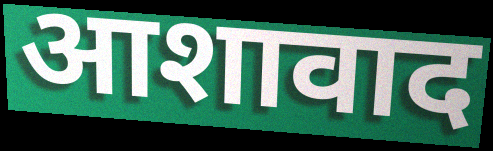
आशावाद